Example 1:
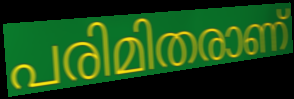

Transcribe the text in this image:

പരിമിതരാണ്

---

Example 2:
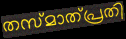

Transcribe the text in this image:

തസ്മാത്പ്രതി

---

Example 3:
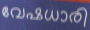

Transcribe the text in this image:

വേഷധാരി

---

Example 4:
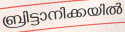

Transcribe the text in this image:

ബ്രിട്ടാനിക്കയിൽ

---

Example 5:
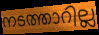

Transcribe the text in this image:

നടത്താറില്ല